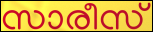
സാരീസ്